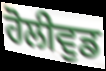
ਹੋਲੀਵੁਡ